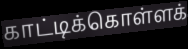
காட்டிக்கொள்ளக்